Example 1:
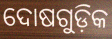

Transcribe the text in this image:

ଦୋଷଗୁଡ଼ିକ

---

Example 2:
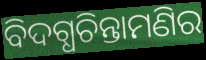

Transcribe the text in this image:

ବିଦଗ୍ଧଚିନ୍ତାମଣିର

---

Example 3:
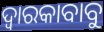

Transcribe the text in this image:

ଦ୍ୱାରକାବାବୁ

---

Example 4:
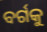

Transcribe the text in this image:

ବର୍ଗକୁ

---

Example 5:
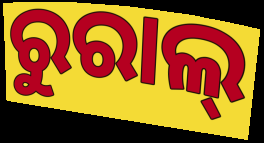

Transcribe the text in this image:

ରୁରାଲ୍